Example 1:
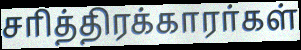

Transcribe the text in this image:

சரித்திரக்காரர்கள்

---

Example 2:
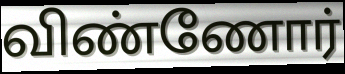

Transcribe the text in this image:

விண்ணோர்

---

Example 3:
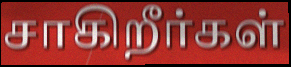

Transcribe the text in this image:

சாகிறீர்கள்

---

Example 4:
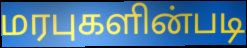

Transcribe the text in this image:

மரபுகளின்படி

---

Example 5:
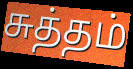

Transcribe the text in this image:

சுத்தம்